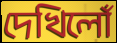
দেখিলোঁ